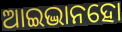
ଆଇଦ୍ଭାନହୋ